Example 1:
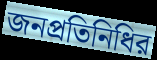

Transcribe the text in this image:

জনপ্রতিনিধির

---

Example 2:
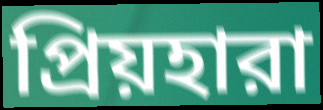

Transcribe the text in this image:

প্রিয়হারা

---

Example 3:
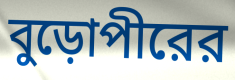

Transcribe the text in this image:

বুড়োপীরের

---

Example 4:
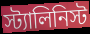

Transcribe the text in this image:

স্ট্যালিনিস্ট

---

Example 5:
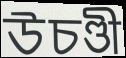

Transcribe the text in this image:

উচণ্ডী